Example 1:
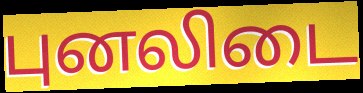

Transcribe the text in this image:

புனலிடை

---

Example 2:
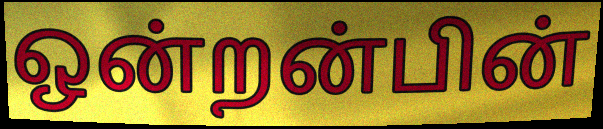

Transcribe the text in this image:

ஒன்றன்பின்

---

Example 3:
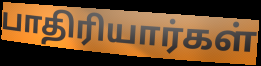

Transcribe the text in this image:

பாதிரியார்கள்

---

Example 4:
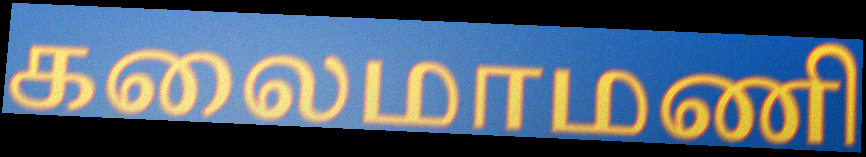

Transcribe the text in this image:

கலைமாமணி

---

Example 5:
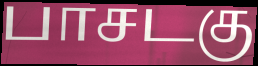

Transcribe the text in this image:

பாசடகு